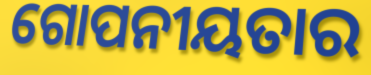
ଗୋପନୀୟତାର